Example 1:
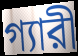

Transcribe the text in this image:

গ্যারী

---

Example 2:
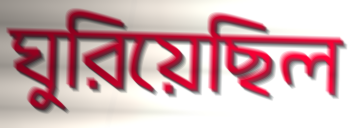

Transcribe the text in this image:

ঘুরিয়েছিল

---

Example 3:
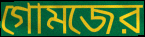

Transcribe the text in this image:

গোমজের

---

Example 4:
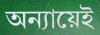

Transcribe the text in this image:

অন্যায়েই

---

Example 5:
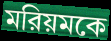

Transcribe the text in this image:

মরিয়মকে